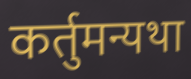
कर्तुमन्यथा